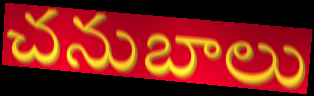
చనుబాలు